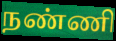
நண்ணி